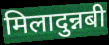
मिलादुन्नबी